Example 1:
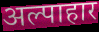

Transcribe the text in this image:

अल्पाहार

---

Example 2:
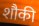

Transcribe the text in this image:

शौकी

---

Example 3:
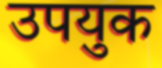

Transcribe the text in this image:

उपयुक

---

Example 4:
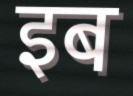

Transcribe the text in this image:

इब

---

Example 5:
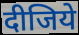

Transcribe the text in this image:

दीजिये